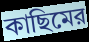
কাছিমের